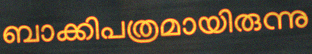
ബാക്കിപത്രമായിരുന്നു